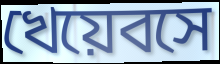
খেয়েবসে